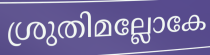
ശ്രുതിമല്ലോകേ